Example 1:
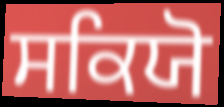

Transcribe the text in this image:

ਸਕਿਯੋ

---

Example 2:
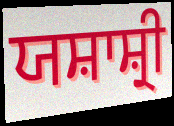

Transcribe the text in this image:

ਯਸ਼ਾਸ਼੍ਰੀ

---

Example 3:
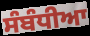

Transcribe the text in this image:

ਸੰਬੰਧੀਆ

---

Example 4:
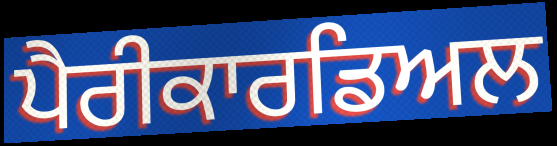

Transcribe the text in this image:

ਪੈਰੀਕਾਰਡਿਅਲ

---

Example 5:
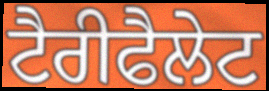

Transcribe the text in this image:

ਟੈਰੀਫੈਲੇਟ